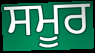
ਸਮੂਰ